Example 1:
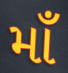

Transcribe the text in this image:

માઁ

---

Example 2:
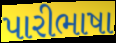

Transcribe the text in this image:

પારીભાષા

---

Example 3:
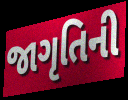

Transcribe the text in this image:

જાગૃતિની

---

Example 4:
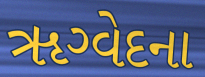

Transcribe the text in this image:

ૠગ્વેદના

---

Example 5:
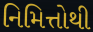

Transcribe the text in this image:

નિમિત્તોથી